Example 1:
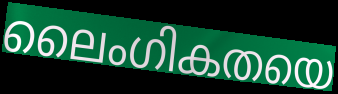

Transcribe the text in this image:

ലൈംഗികതയെ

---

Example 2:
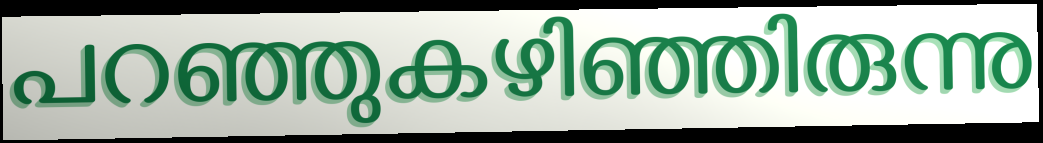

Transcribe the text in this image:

പറഞ്ഞുകഴിഞ്ഞിരുന്നു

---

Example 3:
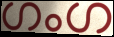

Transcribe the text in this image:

ഗംഗ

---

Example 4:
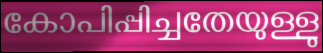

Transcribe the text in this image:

കോപിപ്പിച്ചതേയുള്ളു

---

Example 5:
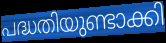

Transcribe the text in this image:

പദ്ധതിയുണ്ടാക്കി